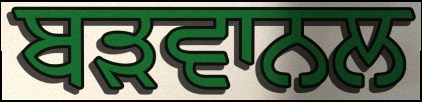
ਬੜਵਾਨਲ